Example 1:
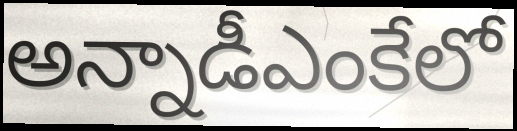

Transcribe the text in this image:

అన్నాడీఎంకేలో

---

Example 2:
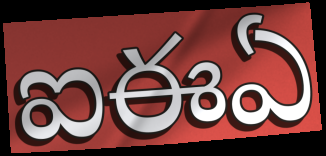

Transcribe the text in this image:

ఐఈఏ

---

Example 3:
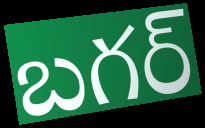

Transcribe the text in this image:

బగర్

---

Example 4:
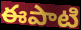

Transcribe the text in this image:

ఈపాటి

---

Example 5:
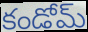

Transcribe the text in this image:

కండోమ్